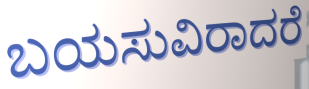
ಬಯಸುವಿರಾದರೆ